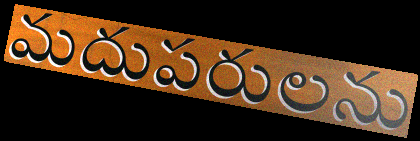
మదుపరులను